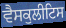
ਵੈਸਕੁਲੀਟਿਸ